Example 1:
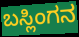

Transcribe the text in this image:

ಬಸ್ಲಿಂಗನ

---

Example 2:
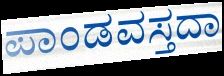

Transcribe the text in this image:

ಪಾಂಡವಸ್ತದಾ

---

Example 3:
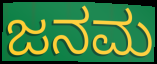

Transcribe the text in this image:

ಜನಮ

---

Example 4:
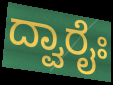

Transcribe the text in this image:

ದ್ವಾರೈಃ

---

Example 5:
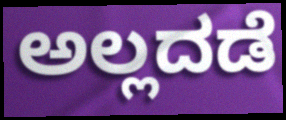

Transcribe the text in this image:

ಅಲ್ಲದಡೆ